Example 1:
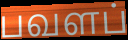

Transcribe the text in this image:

பவளப்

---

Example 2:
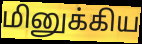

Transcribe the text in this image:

மினுக்கிய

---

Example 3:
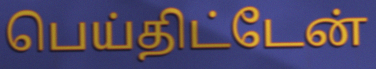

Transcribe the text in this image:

பெய்திட்டேன்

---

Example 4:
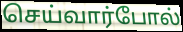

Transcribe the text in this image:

செய்வார்போல்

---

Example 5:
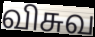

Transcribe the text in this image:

விசுவ